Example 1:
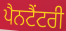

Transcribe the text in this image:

ਪੈਨਟੈਂਟਰੀ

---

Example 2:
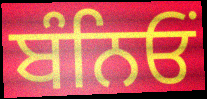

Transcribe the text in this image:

ਬੰਨਿਓਂ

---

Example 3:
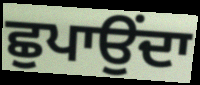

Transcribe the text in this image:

ਛੁਪਾਉਂਦਾ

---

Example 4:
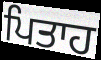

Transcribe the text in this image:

ਪਿਤਾਹ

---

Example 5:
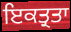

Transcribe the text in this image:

ਇਕਤ੍ਰਤਾ